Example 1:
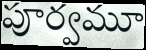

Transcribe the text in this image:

పూర్వమూ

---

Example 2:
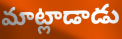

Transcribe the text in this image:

మాట్లాడాడు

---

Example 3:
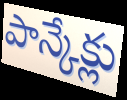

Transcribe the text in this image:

పాన్కేక్లు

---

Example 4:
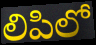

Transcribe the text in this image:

లిపిలో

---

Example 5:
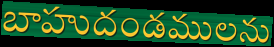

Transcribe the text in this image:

బాహుదండములను